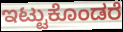
ಇಟ್ಟುಕೊಂಡರೆ